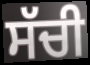
ਸੱਚੀ